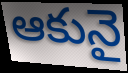
ఆకునై